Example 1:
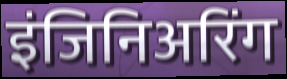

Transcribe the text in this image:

इंजिनिअरिंग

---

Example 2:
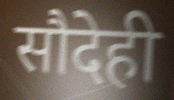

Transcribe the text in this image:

सौदेही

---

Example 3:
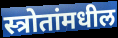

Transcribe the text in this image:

स्त्रोतांमधील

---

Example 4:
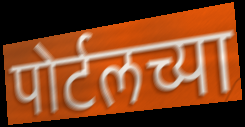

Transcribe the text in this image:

पोर्टलच्या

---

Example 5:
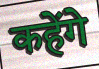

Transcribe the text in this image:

कहेंगे